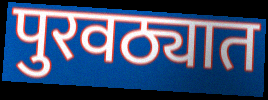
पुरवठ्यात